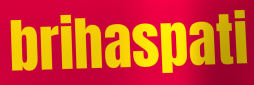
brihaspati